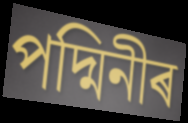
পদ্মিনীৰ